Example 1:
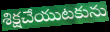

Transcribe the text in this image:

శిక్షచేయుటకును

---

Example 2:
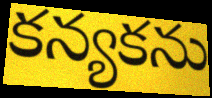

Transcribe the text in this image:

కన్యకను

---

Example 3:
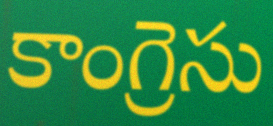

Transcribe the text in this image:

కాంగ్రెసు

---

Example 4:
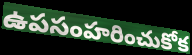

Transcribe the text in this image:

ఉపసంహరించుకోక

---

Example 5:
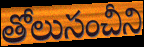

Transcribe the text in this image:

తోలుసంచీని